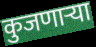
कुजणाऱ्या